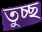
তুচ্ছ